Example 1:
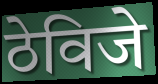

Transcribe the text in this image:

ठेविजे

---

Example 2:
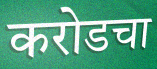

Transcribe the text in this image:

करोडचा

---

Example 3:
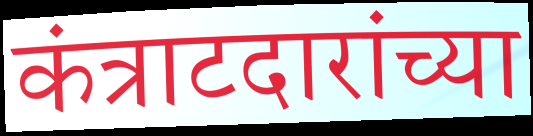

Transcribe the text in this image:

कंत्राटदारांच्या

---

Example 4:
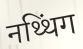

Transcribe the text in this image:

नथ्थिंग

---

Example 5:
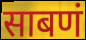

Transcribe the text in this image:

साबणं